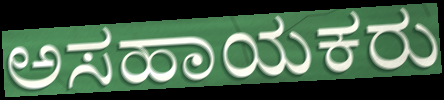
ಅಸಹಾಯಕರು